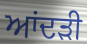
ਆਂਦੜੀ